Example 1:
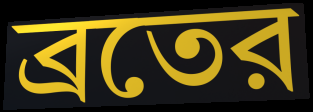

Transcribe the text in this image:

ব্রতের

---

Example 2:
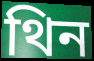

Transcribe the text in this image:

থিন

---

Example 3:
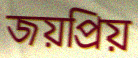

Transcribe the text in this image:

জয়প্রিয়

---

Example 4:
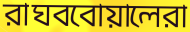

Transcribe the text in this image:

রাঘববোয়ালেরা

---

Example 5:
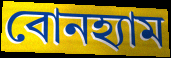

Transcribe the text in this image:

বোনহ্যাম